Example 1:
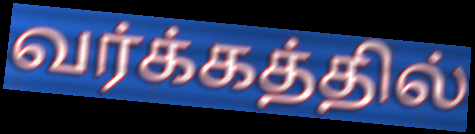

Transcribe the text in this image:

வர்க்கத்தில்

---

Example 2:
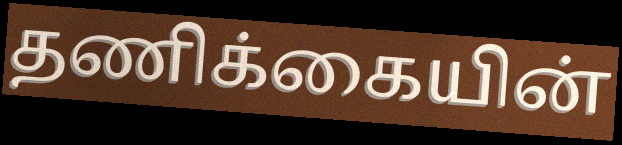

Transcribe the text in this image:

தணிக்கையின்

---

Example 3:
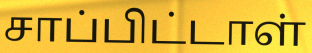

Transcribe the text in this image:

சாப்பிட்டாள்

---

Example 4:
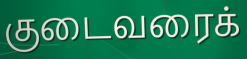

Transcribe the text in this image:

குடைவரைக்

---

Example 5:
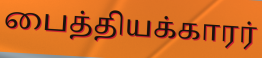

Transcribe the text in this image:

பைத்தியக்காரர்